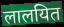
लालयित